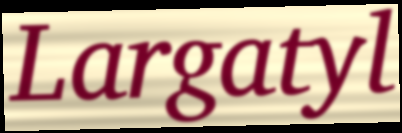
Largatyl